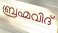
ബ്രഹ്മവിദ്